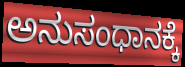
ಅನುಸಂಧಾನಕ್ಕೆ